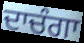
ਦਾਚੰਗਾ